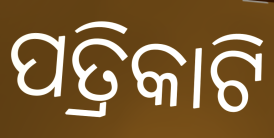
ପତ୍ରିକାଟି